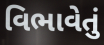
વિભાવેતું